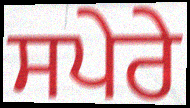
ਸਪੇਰੇ